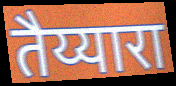
तैय्यारा